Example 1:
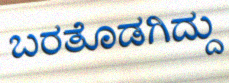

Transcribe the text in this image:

ಬರತೊಡಗಿದ್ದು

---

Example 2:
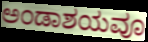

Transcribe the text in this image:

ಅಂಡಾಶಯವೂ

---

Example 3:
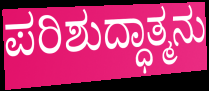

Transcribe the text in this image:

ಪರಿಶುದ್ಧಾತ್ಮನು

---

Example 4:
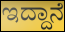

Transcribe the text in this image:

ಇದ್ದಾನೆ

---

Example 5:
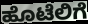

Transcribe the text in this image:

ಹೊಟೆಲಿಗೆ